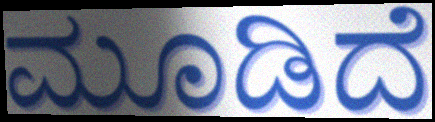
ಮೂಡಿದೆ